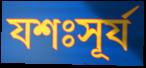
যশঃসূর্য